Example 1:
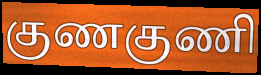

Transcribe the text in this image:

குணகுணி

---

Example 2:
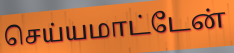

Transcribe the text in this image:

செய்யமாட்டேன்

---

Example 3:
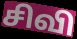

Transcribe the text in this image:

சிவி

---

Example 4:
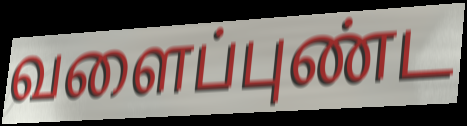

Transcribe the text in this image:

வளைப்புண்ட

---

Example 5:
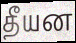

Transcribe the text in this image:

தீயன